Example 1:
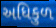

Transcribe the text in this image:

અધિકુળ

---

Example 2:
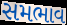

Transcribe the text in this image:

સમભાવ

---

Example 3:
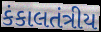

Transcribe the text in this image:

કંકાલતંત્રીય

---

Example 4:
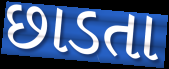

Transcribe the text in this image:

છાડતા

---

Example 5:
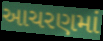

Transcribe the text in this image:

આચરણમાં